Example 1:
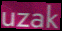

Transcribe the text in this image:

uzak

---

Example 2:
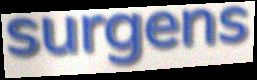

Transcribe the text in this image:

surgens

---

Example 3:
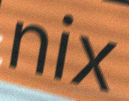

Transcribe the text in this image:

nix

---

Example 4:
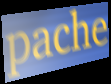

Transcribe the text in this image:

pache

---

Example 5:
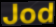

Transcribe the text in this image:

Jod